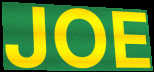
JOE